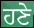
ਹਣੇ